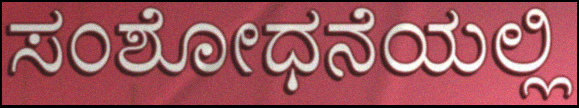
ಸಂಶೋಧನೆಯಲ್ಲಿ